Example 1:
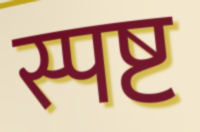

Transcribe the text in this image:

स्पष्ट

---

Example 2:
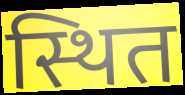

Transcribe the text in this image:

स्थित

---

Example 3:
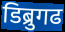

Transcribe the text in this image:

डिब्रुगढ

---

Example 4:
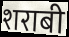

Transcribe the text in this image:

शराबी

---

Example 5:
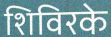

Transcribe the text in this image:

शिविरके